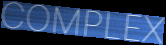
COMPLEX